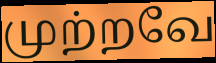
முற்றவே